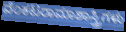
ವೆಂಕಟರಾಮಾಶಾಸ್ತ್ರಿಗಳು